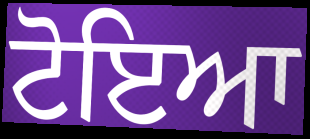
ਟੋਇਆ